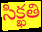
సిక్ఖతి